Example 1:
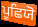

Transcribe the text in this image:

ਪੂਛਿਯੋ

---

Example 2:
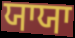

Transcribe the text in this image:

ਯਾਯਾ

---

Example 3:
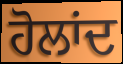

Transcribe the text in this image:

ਹੋਲਾਂਦ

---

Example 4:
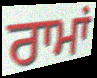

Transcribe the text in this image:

ਰਾਮਾਂ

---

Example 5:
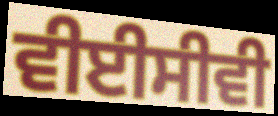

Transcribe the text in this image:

ਵੀਈਸੀਵੀ